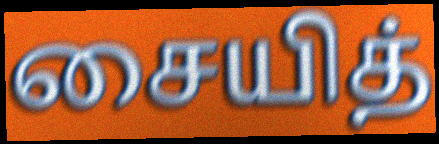
சையித்